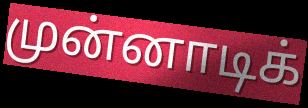
முன்னாடிக்